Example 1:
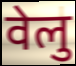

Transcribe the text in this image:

वेलु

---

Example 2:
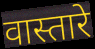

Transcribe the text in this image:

वास्तारे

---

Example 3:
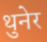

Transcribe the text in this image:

थुनेर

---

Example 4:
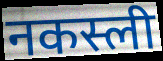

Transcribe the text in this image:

नकस्ली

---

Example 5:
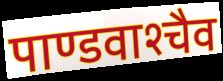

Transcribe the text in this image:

पाण्डवाश्चैव